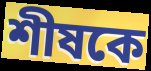
শীষকে